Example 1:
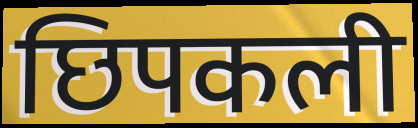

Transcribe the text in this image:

छिपकली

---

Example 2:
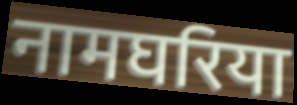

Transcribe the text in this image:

नामघरिया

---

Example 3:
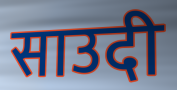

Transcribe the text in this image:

साउदी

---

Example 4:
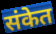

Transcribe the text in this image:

संकेत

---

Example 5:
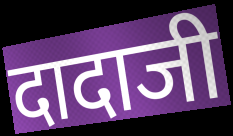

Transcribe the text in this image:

दादाजी